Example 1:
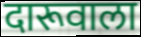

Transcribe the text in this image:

दारूवाला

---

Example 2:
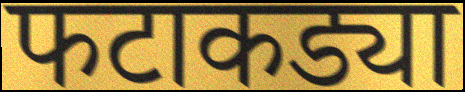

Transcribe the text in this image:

फटाकड्या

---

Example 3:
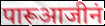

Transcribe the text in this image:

पारूआजीनं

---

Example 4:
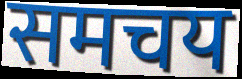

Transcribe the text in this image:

समचय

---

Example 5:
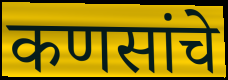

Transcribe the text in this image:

कणसांचे